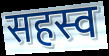
सहस्व